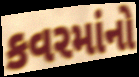
કવરમાંનો